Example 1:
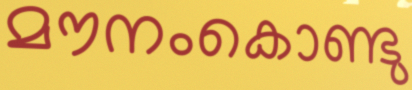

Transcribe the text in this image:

മൗനംകൊണ്ടു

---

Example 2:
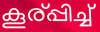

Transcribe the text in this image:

കൂര്പ്പിച്ച്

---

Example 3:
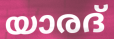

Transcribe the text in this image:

യാരദ്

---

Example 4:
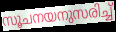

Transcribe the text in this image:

സൂചനയനുസരിച്ച്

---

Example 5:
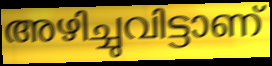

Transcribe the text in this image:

അഴിച്ചുവിട്ടാണ്